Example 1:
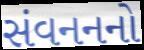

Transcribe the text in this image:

સંવનનનો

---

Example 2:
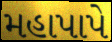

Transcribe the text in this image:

મહાપાપે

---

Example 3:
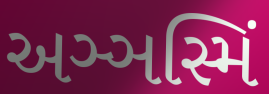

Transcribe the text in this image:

અઞ્ઞસ્મિં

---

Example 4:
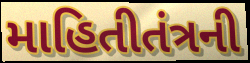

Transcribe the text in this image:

માહિતીતંત્રની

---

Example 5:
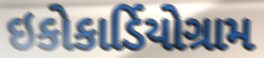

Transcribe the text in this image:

ઇકોકાર્ડિયોગ્રામ